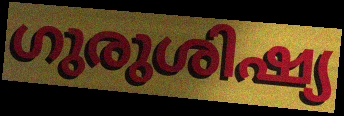
ഗുരുശിഷ്യ